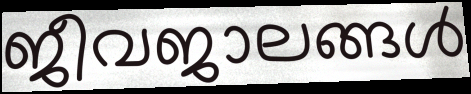
ജീവജാലങ്ങൾ